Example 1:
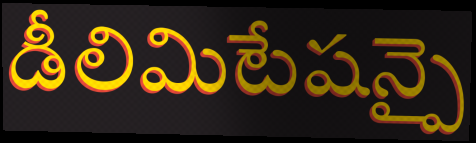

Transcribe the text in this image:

డీలిమిటేషన్పై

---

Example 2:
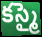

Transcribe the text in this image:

కస్మై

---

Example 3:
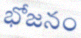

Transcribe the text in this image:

భోజనం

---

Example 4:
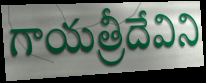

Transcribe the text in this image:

గాయత్రీదేవిని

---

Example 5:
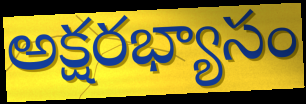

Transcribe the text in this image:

అక్షరభ్యాసం